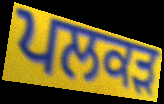
ਪਲਕੜ